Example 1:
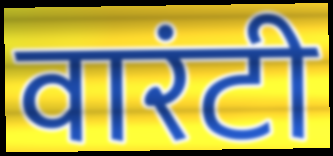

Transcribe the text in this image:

वारंटी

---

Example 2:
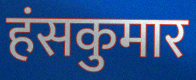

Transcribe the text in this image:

हंसकुमार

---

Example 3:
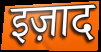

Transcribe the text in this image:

इज़ाद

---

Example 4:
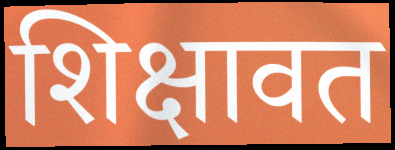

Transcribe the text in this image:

शिक्षावत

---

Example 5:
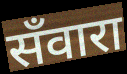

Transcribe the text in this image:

सँवारा